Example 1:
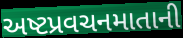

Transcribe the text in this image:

અષ્ટપ્રવચનમાતાની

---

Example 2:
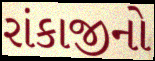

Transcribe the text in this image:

રાંકાજીનો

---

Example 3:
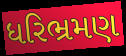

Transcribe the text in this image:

ધરિભ્રમણ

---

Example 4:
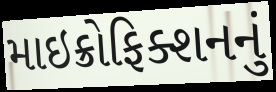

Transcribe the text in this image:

માઇક્રોફિક્શનનું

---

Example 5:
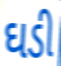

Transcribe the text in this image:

ઘડી